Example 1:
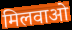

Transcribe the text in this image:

मिलवाओ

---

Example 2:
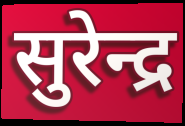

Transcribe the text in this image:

सुरेन्द्र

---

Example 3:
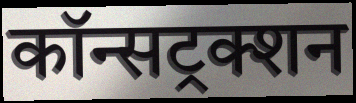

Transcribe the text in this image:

कॉन्सट्रक्शन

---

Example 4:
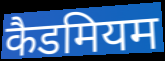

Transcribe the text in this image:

कैडमियम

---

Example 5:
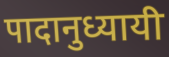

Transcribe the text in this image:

पादानुध्यायी